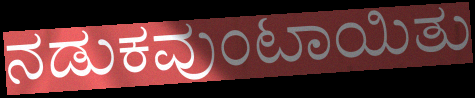
ನಡುಕವುಂಟಾಯಿತು